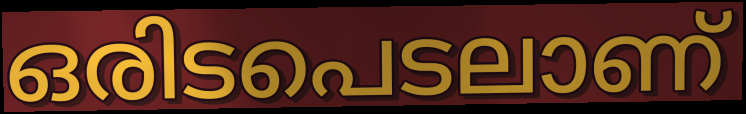
ഒരിടപെടലാണ്